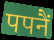
पपनैं